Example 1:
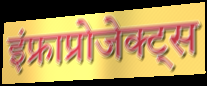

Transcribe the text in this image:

इंफ्राप्रोजेक्ट्स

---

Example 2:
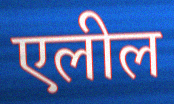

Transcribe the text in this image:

एलील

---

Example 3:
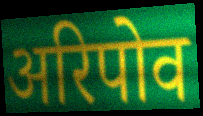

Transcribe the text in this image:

अरिपोव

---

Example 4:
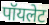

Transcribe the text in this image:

पॉयलेट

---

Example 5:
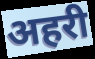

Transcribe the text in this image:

अहरी